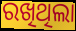
ରଖିଥିଲା